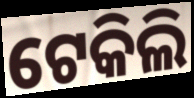
ଟେକିଲି